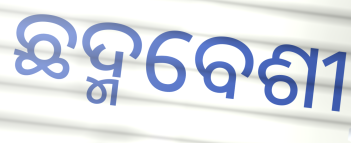
ଛଦ୍ମବେଶୀ